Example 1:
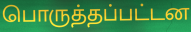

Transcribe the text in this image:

பொருத்தப்பட்டன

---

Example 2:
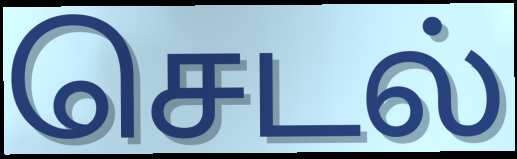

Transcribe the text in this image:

செடல்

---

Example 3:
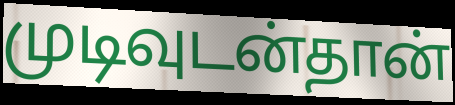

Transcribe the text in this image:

முடிவுடன்தான்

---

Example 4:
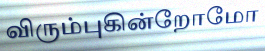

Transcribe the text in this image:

விரும்புகின்றோமோ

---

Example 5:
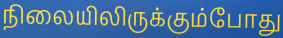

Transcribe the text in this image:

நிலையிலிருக்கும்போது